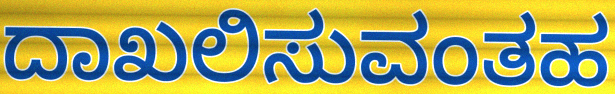
ದಾಖಲಿಸುವಂತಹ